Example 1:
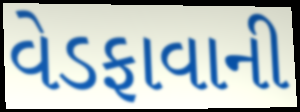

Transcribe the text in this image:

વેડફાવાની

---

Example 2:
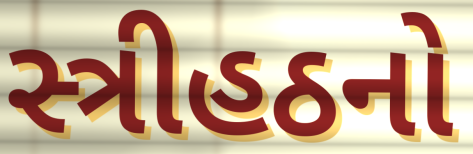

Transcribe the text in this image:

સ્ત્રીહઠનો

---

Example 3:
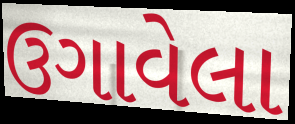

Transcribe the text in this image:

ઉગાવેલા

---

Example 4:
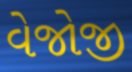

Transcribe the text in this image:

વેજોજી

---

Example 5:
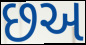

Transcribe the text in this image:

છઅ